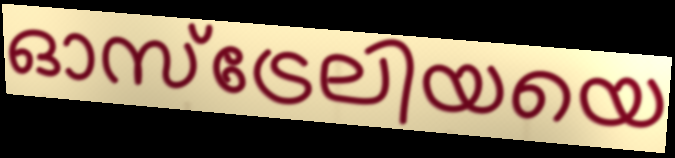
ഓസ്ട്രേലിയയെ